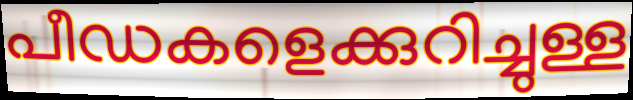
പീഡകളെക്കുറിച്ചുള്ള